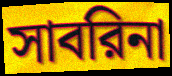
সাবরিনা